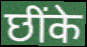
छींके